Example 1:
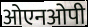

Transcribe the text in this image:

ओएनओपी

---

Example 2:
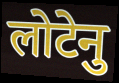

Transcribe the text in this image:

लोटेनु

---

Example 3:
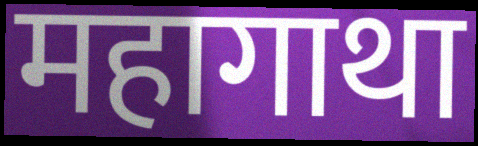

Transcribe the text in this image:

महागाथा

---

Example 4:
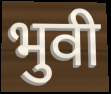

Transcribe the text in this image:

भुवी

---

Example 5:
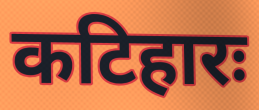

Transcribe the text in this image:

कटिहारः